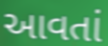
આવતાં